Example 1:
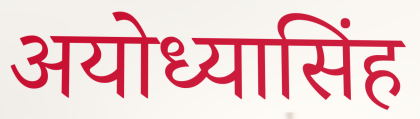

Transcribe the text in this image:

अयोध्यासिंह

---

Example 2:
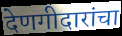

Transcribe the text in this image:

देणगीदारांचा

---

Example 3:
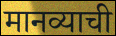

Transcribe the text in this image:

मानव्याची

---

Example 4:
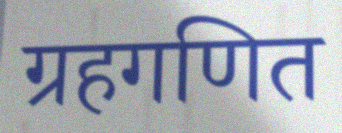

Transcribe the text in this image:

ग्रहगणित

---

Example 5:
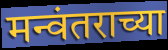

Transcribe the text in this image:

मन्वंतराच्या